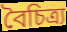
বৈচিত্র্য